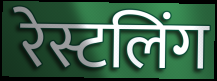
रेस्टलिंग